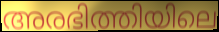
അരഭിത്തിയിലെ